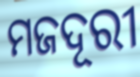
ମଜଦୂରୀ